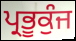
ਪ੍ਰਭੂਕੁੰਜ